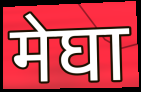
मेघा